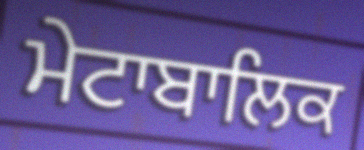
ਮੇਟਾਬਾਲਿਕ